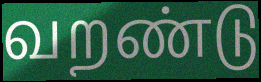
வறண்டு